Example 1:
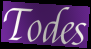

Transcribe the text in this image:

Todes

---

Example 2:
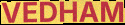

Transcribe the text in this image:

VEDHAM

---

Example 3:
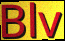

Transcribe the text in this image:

Blv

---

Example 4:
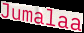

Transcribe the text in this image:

Jumalaa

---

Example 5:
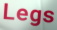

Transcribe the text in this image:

Legs